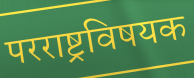
परराष्ट्रविषयक